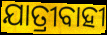
ଯାତ୍ରୀବାହୀ